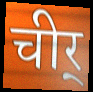
चीर्